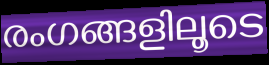
രംഗങ്ങളിലൂടെ